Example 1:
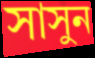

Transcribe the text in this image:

সাসুন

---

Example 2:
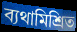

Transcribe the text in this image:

ব্যথামিশ্রিত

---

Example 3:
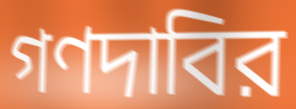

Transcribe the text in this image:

গণদাবির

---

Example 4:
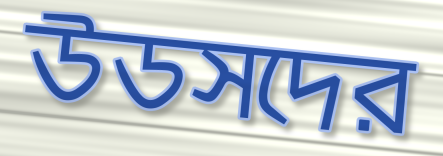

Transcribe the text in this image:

উডসদের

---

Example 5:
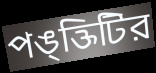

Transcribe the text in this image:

পঙ্‌ক্তিটির